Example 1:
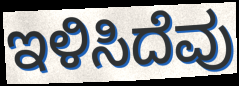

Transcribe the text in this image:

ಇಳಿಸಿದೆವು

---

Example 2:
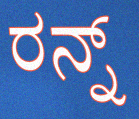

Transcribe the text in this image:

ರನ್ನ್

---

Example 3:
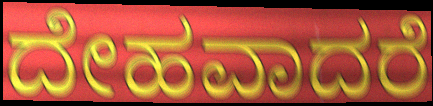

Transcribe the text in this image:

ದೇಹವಾದರೆ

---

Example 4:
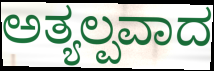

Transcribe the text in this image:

ಅತ್ಯಲ್ಪವಾದ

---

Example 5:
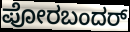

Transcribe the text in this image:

ಪೋರಬಂದರ್